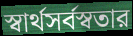
স্বার্থসর্বস্বতার